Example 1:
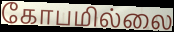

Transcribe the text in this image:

கோபமில்லை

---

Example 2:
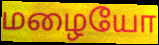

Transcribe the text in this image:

மழையோ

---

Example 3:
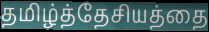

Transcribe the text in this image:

தமிழ்த்தேசியத்தை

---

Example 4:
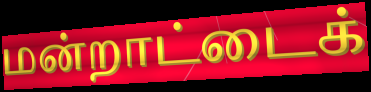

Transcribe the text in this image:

மன்றாட்டைக்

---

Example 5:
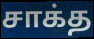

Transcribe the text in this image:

சாக்த